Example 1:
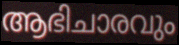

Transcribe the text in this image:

ആഭിചാരവും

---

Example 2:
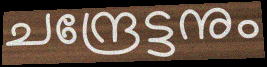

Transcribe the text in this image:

ചന്ദ്രേട്ടനും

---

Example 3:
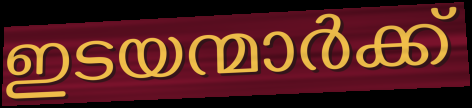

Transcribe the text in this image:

ഇടയന്മാർക്ക്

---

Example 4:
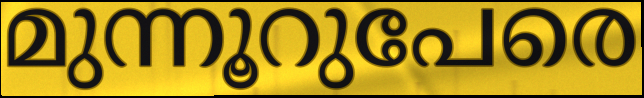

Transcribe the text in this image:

മുന്നൂറുപേരെ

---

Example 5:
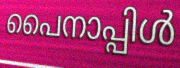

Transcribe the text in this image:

പൈനാപ്പിൾ